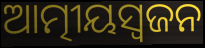
ଆତ୍ମୀୟସ୍ୱଜନ